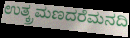
ಉತ್ಕ್ರಮಣದರೆಮನದಿ